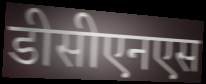
डीसीएनएस